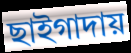
ছাইগাদায়